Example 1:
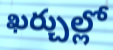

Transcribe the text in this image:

ఖర్చుల్లో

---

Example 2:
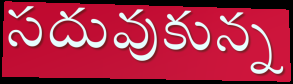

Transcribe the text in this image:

సదువుకున్న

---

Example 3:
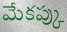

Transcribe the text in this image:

మేకప్కు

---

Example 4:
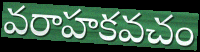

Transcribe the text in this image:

వరాహకవచం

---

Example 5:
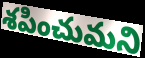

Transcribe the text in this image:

శపించుమని